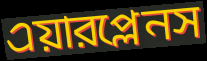
এয়ারপ্লেনস